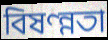
বিষণ্ন্নতা